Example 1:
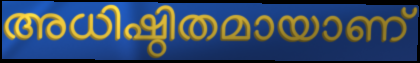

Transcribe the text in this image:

അധിഷ്ഠിതമായാണ്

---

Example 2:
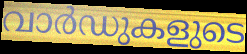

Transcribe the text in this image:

വാർഡുകളുടെ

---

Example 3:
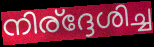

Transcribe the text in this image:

നിര്ദ്ദേശിച്ച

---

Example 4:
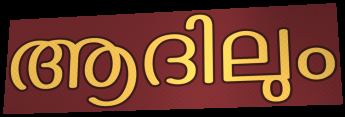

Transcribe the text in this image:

ആദിലും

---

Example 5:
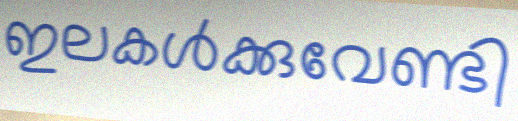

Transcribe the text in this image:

ഇലകൾക്കുവേണ്ടി